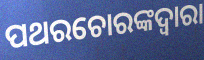
ପଥରଚୋରଙ୍କଦ୍ୱାରା